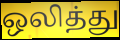
ஒலித்து